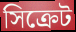
সিক্রেট